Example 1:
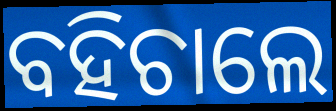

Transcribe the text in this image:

ବହିଚାଲେ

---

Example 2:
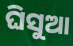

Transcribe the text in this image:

ଘିସୁଆ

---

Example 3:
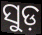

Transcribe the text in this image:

ସୁଡ଼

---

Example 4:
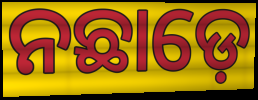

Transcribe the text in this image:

ନଛାଡ଼େ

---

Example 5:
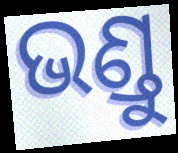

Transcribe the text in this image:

ଭଣ୍ଡୁ